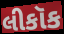
લીકૉક